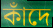
কাঁদে